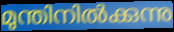
മുന്തിനിൽക്കുന്നു